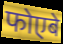
फोएबे